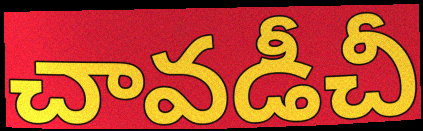
చావడీచీ